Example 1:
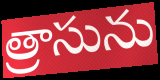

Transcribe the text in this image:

త్రాసును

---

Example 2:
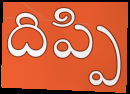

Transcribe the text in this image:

దిప్పి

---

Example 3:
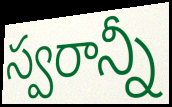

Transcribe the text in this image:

స్వరాన్నీ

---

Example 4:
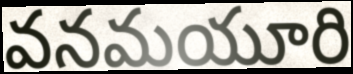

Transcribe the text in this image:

వనమయూరి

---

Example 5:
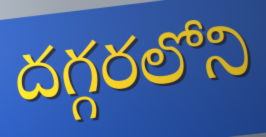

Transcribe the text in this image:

దగ్గరలోని